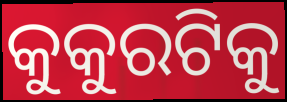
କୁକୁରଟିକୁ